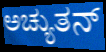
ಅಚ್ಯುತನ್